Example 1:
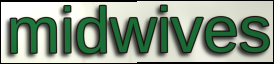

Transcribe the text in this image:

midwives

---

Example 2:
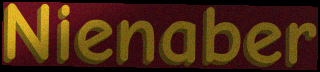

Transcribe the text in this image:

Nienaber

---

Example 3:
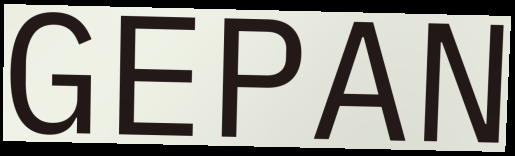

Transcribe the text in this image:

GEPAN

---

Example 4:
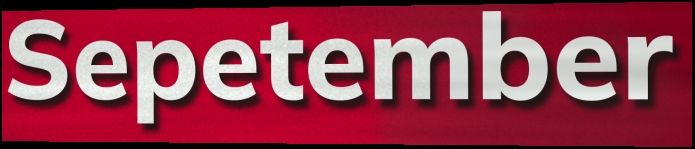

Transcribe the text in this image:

Sepetember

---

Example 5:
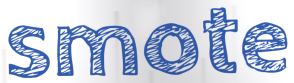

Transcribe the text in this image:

smote